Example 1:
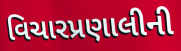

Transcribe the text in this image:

વિચારપ્રણાલીની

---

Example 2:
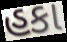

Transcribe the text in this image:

હકા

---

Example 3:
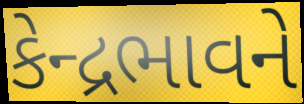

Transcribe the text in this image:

કેન્દ્રભાવને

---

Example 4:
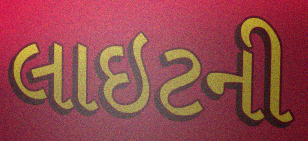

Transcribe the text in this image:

લાઇટની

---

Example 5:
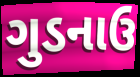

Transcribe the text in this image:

ગુડનાઉ